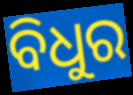
ବିଧୁର